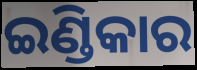
ଇଣ୍ଡିକାର